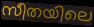
സീതയിലെ